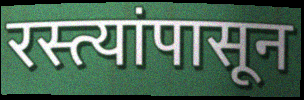
रस्त्यांपासून